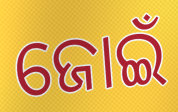
ଜୋଇଁ